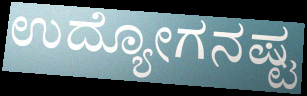
ಉದ್ಯೋಗನಷ್ಟ